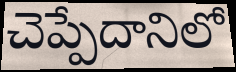
చెప్పేదానిలో